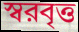
স্বরবৃত্ত